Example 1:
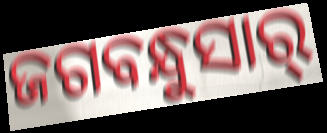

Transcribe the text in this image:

ଜଗବନ୍ଧୁସାର୍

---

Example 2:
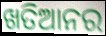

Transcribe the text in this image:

ଖତିଆନର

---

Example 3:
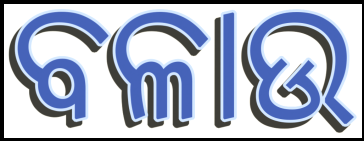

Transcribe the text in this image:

ବଳାଉ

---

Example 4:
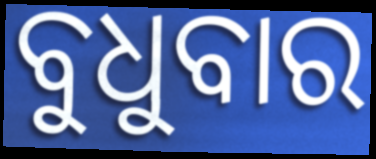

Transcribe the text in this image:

ବୁଧୁବାର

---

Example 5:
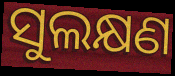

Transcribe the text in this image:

ସୁଲକ୍ଷଣ